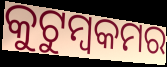
କୁଟୁମ୍ବକମର